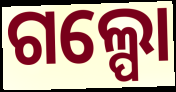
ଗଲ୍ପୋ